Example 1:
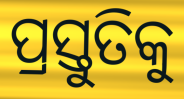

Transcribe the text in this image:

ପ୍ରସ୍ତୁତିକୁ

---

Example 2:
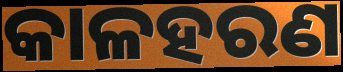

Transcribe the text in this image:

କାଳହରଣ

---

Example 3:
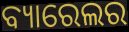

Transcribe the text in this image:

ବ୍ୟାରେଲର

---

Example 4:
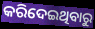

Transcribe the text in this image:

କରିଦେଇଥିବାରୁ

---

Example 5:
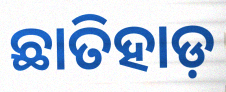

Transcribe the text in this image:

ଛାତିହାଡ଼